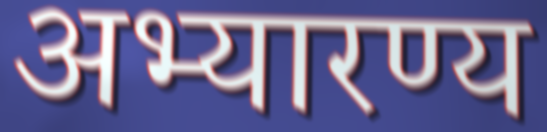
अभ्यारण्य